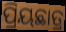
ପ୍ରିୟଛାତ୍ର